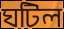
ঘটিল